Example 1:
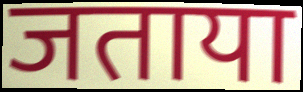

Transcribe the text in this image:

जताया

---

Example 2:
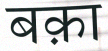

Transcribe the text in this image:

बक़ा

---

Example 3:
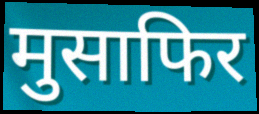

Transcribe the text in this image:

मुसाफिर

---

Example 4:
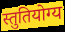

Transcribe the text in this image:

स्तुतियोग्य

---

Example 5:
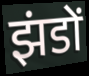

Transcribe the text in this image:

झंडों